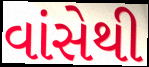
વાંસેથી